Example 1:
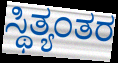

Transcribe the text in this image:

ಸ್ಥಿತ್ಯಂತರ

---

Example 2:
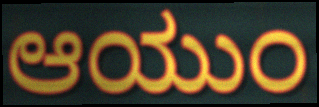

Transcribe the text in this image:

ಆಯುಂ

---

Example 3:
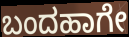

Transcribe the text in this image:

ಬಂದಹಾಗೇ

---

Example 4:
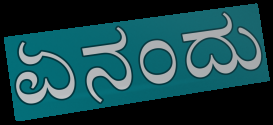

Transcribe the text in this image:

ಏನಂದು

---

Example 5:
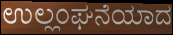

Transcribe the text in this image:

ಉಲ್ಲಂಘನೆಯಾದ